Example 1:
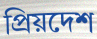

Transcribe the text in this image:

প্রিয়দেশ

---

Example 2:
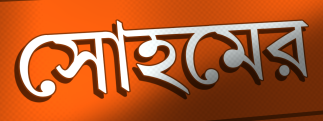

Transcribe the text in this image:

সোহমের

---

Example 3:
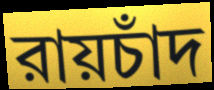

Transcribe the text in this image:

রায়চাঁদ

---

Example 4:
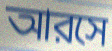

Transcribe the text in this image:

আরসে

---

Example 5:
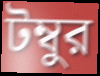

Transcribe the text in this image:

টম্বুর